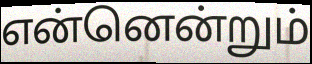
என்னென்றும்